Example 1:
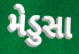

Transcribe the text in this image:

મેડુસા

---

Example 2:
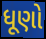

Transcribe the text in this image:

ધૂણો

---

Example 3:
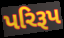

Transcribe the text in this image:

પરિરૂપ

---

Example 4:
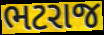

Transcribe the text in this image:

ભટરાજ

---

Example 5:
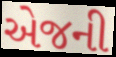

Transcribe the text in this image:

એજની